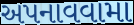
અપનાવવામા